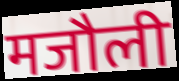
मजौली